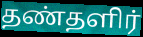
தண்தளிர்